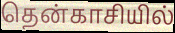
தென்காசியில்